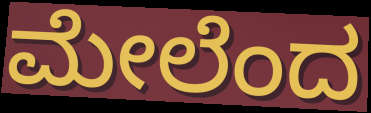
ಮೇಲೆಂದ